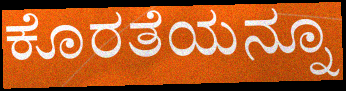
ಕೊರತೆಯನ್ನೂ